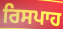
ਰਿਸਪਾਹ